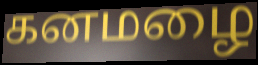
கனமழை